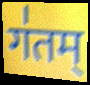
ग॑तम्